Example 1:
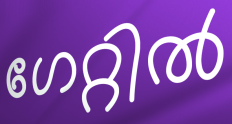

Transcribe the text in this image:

ഗേറ്റിൽ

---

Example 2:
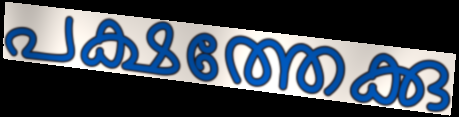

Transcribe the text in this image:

പക്ഷത്തേക്കു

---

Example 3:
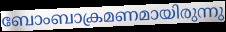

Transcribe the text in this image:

ബോംബാക്രമണമായിരുന്നു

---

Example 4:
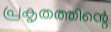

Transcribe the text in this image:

പ്രകൃതത്തിന്റെ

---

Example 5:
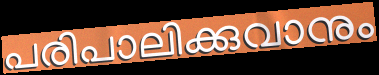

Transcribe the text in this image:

പരിപാലിക്കുവാനും